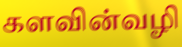
களவின்வழி